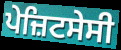
ਪੇਜ਼ਿਟਸੇਸੀ